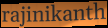
rajinikanth